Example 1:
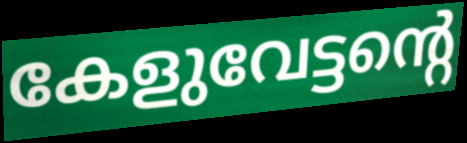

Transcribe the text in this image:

കേളുവേട്ടന്റെ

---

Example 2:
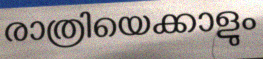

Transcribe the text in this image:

രാത്രിയെക്കാളും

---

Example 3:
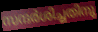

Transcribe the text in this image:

സന്ദർശിച്ചതിനു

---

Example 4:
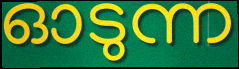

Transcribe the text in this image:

ഓടുന്ന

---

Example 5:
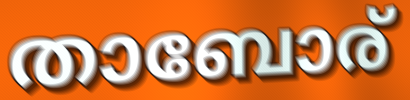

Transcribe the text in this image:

താബോര്